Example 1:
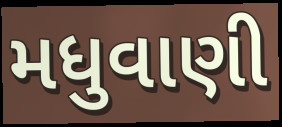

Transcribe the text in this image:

મધુવાણી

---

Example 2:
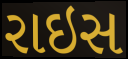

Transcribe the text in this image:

રાઇસ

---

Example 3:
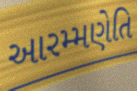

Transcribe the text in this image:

આરમ્મણેતિ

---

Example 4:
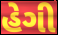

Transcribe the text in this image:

હેગી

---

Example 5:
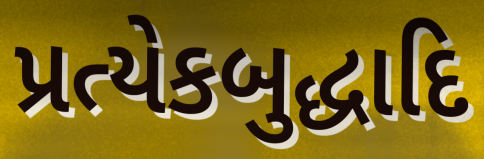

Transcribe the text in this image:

પ્રત્યેકબુદ્ધાદિ